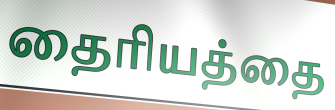
தைரியத்தை